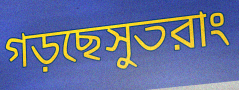
গড়ছেসুতরাং